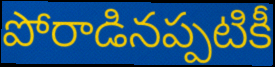
పోరాడినప్పటికీ